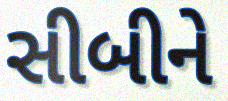
સીબીને